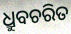
ଧ୍ରୁବଚରିତ